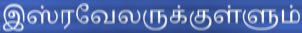
இஸ்ரவேலருக்குள்ளும்